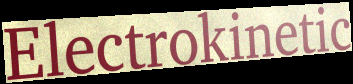
Electrokinetic